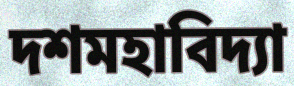
দশমহাবিদ্যা